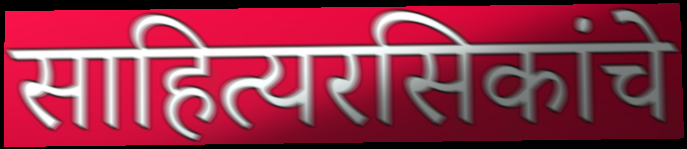
साहित्यरसिकांचे